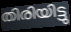
തിരിയിട്ടു